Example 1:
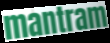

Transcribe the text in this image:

mantram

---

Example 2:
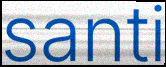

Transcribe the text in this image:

santi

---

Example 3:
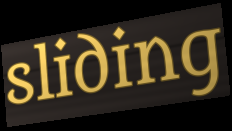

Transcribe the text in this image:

sliding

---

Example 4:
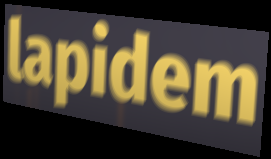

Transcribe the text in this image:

lapidem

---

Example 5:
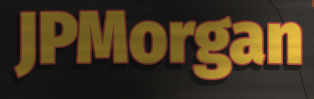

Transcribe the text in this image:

JPMorgan